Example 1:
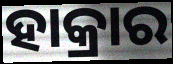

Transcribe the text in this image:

ହାକ୍ରାର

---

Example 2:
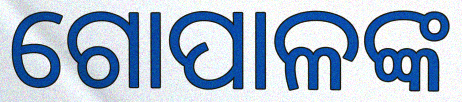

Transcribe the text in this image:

ଗୋପାଳଙ୍କ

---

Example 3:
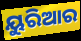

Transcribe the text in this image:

ୟୁରିଆର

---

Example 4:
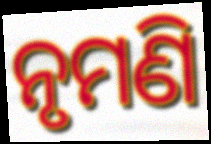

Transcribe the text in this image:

ନୃମଣି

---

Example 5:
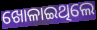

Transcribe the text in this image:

ଖୋଳାଇଥିଲେ